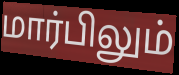
மார்பிலும்